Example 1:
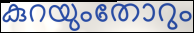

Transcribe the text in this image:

കുറയുംതോറും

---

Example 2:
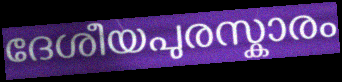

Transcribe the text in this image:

ദേശീയപുരസ്കാരം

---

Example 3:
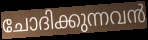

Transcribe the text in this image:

ചോദിക്കുന്നവൻ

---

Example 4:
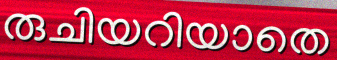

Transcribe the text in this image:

രുചിയറിയാതെ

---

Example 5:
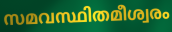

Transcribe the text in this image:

സമവസ്ഥിതമീശ്വരം